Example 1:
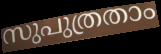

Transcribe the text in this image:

സുപുത്രതാം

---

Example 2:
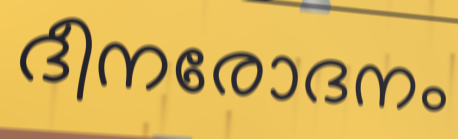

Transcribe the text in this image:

ദീനരോദനം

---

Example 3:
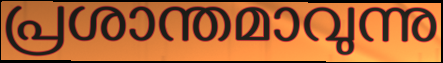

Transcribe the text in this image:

പ്രശാന്തമാവുന്നു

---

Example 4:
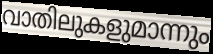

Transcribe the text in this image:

വാതിലുകളുമാന്നും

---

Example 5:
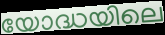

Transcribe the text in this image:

യോദ്ധയിലെ